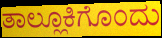
ತಾಲ್ಲೂಕಿಗೊಂದು